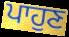
ਪਾਹੁਣ